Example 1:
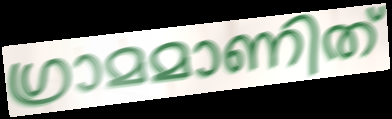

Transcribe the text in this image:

ഗ്രാമമാണിത്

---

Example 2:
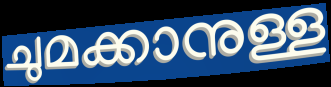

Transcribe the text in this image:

ചുമക്കാനുള്ള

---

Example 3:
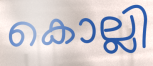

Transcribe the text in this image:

കൊല്ലി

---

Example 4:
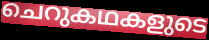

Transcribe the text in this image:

ചെറുകഥകളുടെ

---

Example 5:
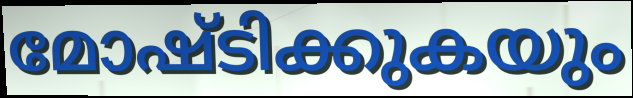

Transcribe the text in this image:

മോഷ്ടിക്കുകയും